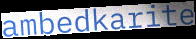
ambedkarite